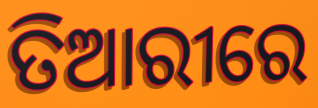
ତିଆରୀରେ